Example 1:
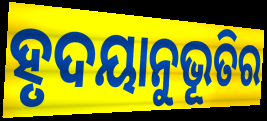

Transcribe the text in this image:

ହୃଦୟାନୁଭୂତିର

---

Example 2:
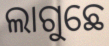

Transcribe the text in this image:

ଲାଗୁଛେ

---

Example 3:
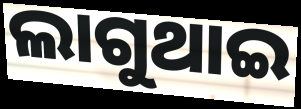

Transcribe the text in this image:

ଲାଗୁଥାଇ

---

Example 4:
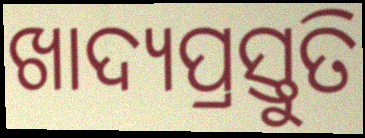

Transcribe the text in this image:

ଖାଦ୍ୟପ୍ରସ୍ତୁତି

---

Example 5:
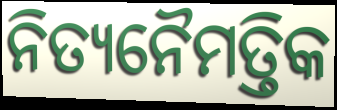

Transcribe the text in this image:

ନିତ୍ୟନୈମତ୍ତିକ